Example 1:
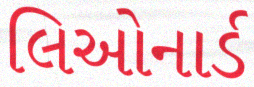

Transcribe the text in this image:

લિઓનાર્ડ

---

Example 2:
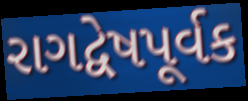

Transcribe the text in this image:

રાગદ્વેષપૂર્વક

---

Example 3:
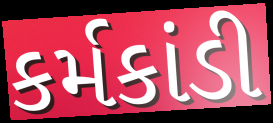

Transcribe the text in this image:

કર્મકાંડી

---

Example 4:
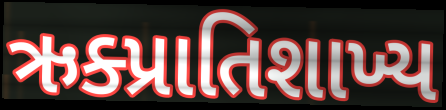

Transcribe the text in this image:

ઋક્પ્રાતિશાખ્ય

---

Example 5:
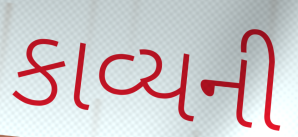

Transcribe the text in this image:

કાવ્યની